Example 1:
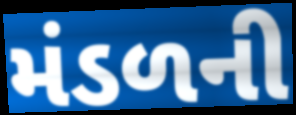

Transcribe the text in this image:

મંડળની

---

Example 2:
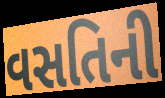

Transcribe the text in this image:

વસતિની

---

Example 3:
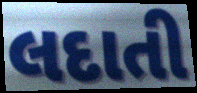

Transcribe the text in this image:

લદાતી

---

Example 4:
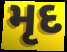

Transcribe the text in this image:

મૃદ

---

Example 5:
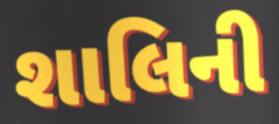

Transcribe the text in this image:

શાલિની